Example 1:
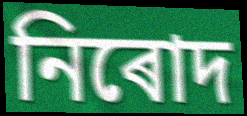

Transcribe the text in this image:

নিৰোদ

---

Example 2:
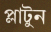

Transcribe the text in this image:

প্লাটুন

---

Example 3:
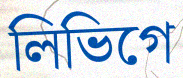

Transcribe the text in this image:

লিভিগে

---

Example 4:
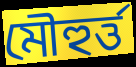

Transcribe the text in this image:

মৌহুৰ্ত্ত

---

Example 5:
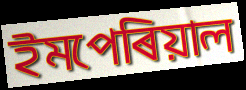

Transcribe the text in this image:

ইমপেৰিয়াল